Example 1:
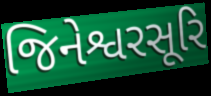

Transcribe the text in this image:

જિનેશ્વરસૂરિ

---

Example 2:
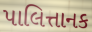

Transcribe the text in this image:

પાલિત્તાનક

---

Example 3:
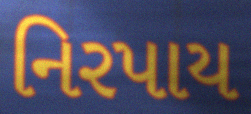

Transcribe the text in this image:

નિરપાય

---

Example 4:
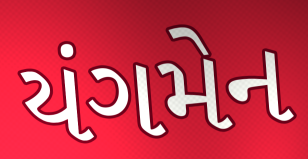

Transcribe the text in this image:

યંગમેન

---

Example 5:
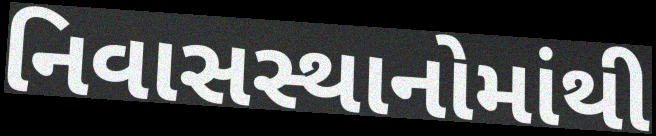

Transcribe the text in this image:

નિવાસસ્થાનોમાંથી